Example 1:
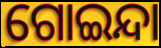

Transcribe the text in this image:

ଗୋଇନ୍ଦା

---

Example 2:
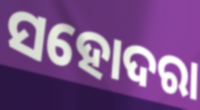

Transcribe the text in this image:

ସହୋଦରା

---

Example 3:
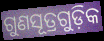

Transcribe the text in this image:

ଗୁଣସୂତ୍ରଗୁଡ଼ିକ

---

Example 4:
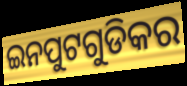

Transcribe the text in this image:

ଇନପୁଟଗୁଡିକର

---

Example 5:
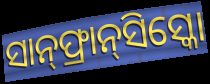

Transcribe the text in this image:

ସାନ୍‌ଫ୍ରାନ୍‌ସିସ୍କୋ